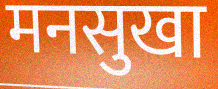
मनसुखा